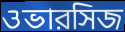
ওভারসিজ